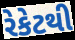
રેકેટથી